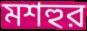
মশহুর